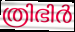
ത്രിഭിർ